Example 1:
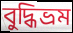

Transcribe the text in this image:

বুদ্ধিভ্রম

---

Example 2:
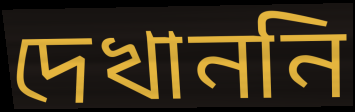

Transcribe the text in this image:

দেখাননি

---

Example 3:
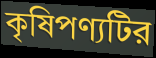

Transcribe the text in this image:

কৃষিপণ্যটির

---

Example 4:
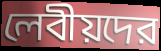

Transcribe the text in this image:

লেবীয়দের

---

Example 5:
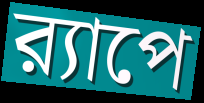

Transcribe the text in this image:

র‍্যাপে